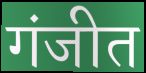
गंजीत